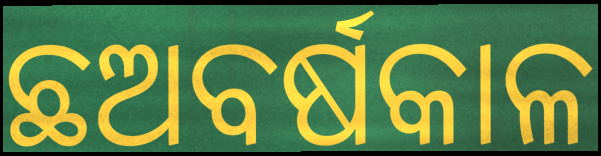
ଛଅବର୍ଷକାଳ